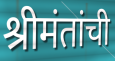
श्रीमंतांची